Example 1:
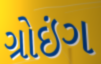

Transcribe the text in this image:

ગ્રોઇંગ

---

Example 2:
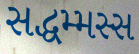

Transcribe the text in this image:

સદ્ધમ્મસ્સ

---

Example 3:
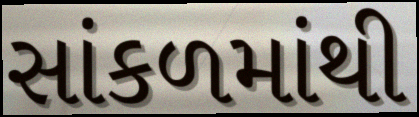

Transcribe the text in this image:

સાંકળમાંથી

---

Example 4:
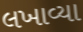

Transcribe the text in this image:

લખાવ્યા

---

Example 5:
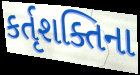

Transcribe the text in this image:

કર્તૃશક્તિના